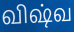
விஷ்வ